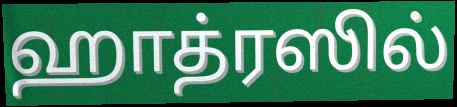
ஹாத்ரஸில்